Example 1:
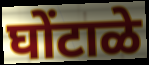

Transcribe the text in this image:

घोंटाळे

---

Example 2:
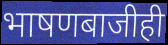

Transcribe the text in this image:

भाषणबाजीही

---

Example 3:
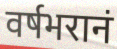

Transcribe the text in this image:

वर्षभरानं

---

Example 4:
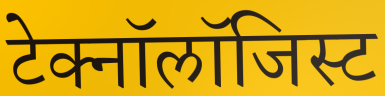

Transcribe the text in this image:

टेक्नॉलॉजिस्ट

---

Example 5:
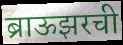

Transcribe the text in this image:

ब्राऊझरची